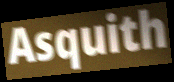
Asquith